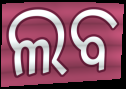
ଲବ